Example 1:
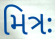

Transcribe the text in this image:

મિત્રઃ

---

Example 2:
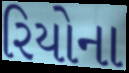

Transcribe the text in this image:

રિયોના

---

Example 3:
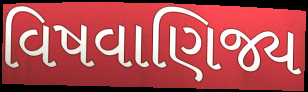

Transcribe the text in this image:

વિષવાણિજ્ય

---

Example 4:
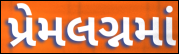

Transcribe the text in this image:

પ્રેમલગ્નમાં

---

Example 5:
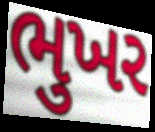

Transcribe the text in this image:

ભુખર